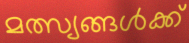
മത്സ്യങ്ങൾക്ക്